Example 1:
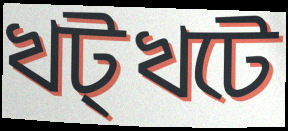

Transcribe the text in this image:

খট্‌খটে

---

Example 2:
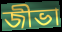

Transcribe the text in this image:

জীভা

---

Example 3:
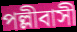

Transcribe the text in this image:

পল্লীবাসী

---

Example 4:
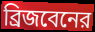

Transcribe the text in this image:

ব্রিজবেনের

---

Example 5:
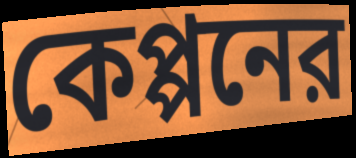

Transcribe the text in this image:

কেপ্পনের